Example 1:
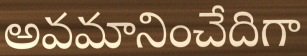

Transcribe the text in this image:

అవమానించేదిగా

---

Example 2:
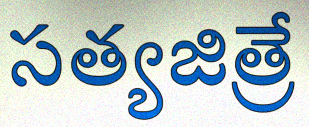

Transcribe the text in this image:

సత్యజిత్రే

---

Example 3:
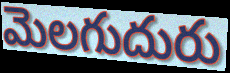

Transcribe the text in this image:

మెలగుదురు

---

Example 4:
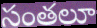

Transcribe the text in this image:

సంతలూ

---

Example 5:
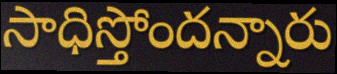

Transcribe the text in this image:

సాధిస్తోందన్నారు